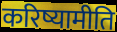
करिष्यामीति